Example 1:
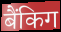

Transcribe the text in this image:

बैंकिग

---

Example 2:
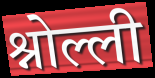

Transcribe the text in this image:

श्नोल्ली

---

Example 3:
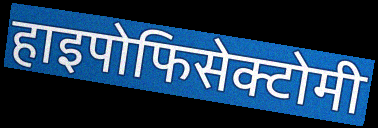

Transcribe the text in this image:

हाइपोफिसेक्टोमी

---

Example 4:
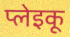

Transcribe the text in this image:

प्लेइकू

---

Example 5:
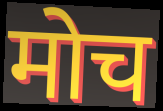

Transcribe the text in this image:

मोच